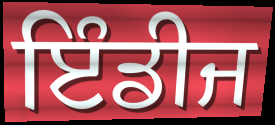
ਇੰਡੀਜ